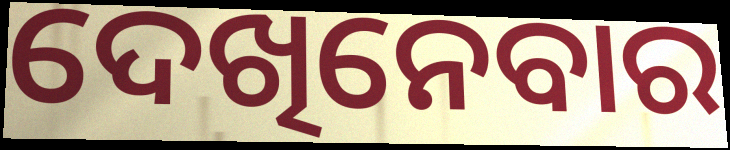
ଦେଖିନେବାର